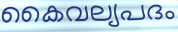
കൈവല്യപദം